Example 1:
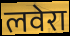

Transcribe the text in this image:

लवेरा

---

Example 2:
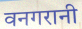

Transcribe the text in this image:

वनगरानी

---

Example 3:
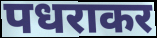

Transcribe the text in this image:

पधराकर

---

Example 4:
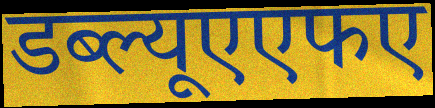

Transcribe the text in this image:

डब्ल्यूएएफए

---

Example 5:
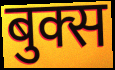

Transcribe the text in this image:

बुक्‍स